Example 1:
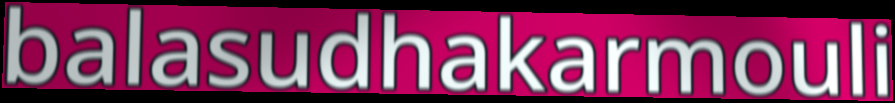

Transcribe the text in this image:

balasudhakarmouli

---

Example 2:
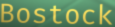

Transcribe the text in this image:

Bostock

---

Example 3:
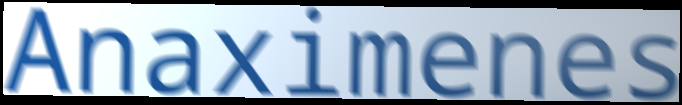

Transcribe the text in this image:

Anaximenes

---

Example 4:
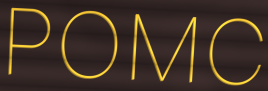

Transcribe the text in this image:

POMC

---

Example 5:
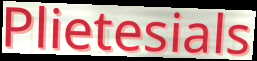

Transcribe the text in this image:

Plietesials